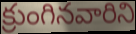
క్రుంగినవారిని